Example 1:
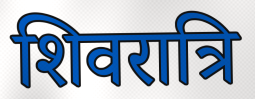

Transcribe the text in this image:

शिवरात्रि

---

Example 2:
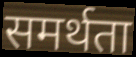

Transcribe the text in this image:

समर्थता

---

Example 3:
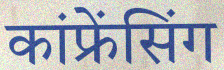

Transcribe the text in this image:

कांफ्रेंसिंग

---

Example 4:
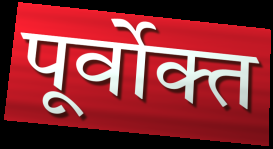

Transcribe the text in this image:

पूर्वोक्‍त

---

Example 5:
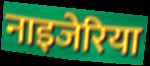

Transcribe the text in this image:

नाइजेरिया